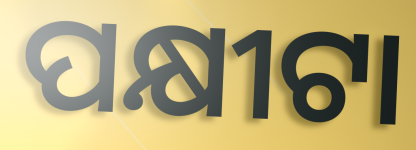
ପକ୍ଷୀଟା